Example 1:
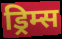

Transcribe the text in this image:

ड्रिम्स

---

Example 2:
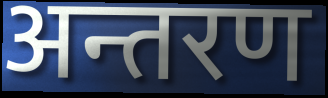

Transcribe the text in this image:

अन्तरण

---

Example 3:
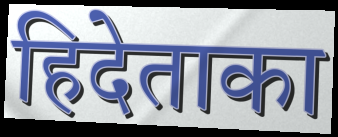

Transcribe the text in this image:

हिदेताका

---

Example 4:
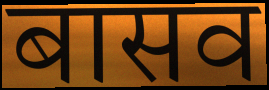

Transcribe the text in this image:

बासव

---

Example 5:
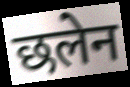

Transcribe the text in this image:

छलेन